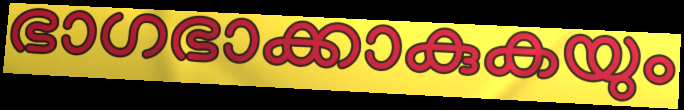
ഭാഗഭാക്കാകുകയും